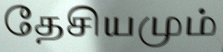
தேசியமும்